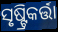
ସୃଷ୍ଟ୍ରିକର୍ତ୍ତା